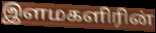
இளமகளிரின்